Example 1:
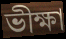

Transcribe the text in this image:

ভীক্ষা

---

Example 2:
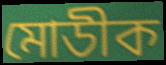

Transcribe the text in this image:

মোডীক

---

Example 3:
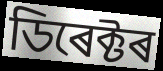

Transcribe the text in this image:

ডিৰেক্টৰ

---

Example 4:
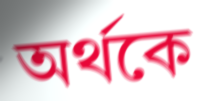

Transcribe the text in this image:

অৰ্থকে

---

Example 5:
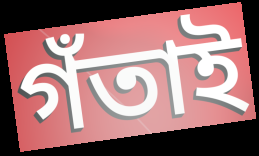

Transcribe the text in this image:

গঁতাই